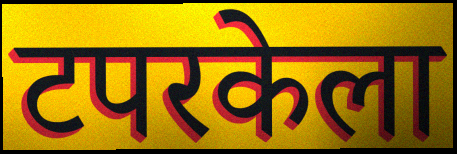
टपरकेला